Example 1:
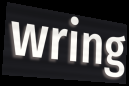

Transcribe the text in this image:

wring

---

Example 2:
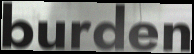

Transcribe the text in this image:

burden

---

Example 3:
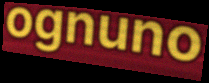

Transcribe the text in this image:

ognuno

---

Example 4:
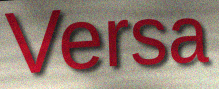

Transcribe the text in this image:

Versa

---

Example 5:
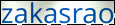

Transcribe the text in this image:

zakasrao